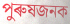
পুৰুষজনক